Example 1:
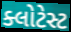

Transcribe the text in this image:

ક્લોટેસ્ટ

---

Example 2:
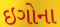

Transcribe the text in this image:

ઇગોના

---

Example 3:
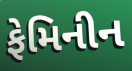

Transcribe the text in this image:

ફેમિનીન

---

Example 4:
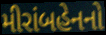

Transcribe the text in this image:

મીરાંબહેનનો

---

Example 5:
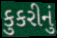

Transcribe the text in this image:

કુકરીનું